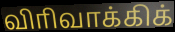
விரிவாக்கிக்